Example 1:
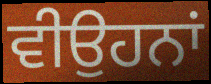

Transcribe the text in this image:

ਵੀਉਹਨਾਂ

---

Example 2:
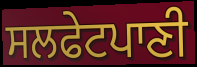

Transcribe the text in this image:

ਸਲਫੇਟਪਾਣੀ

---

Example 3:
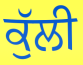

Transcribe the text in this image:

ਕੁੱਲੀ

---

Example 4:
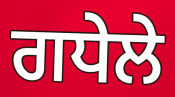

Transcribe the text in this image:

ਗਧੇਲੇ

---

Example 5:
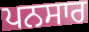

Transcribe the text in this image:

ਪਨਸਾਰ